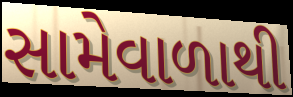
સામેવાળાથી